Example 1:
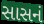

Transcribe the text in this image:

સાસનં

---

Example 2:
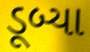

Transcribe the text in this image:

ડૂબ્યા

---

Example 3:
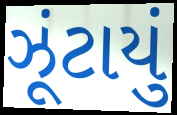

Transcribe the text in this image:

ઝૂંટાયું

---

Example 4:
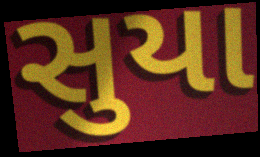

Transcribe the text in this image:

સુયા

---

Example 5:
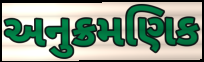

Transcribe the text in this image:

અનુક્રમણિક